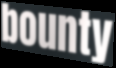
bounty